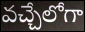
వచ్చేలోగా